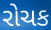
રોચક